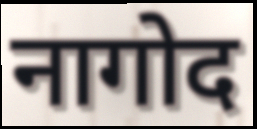
नागोद